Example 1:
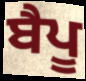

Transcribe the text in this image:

ਬੈਪੂ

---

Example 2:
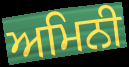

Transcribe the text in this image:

ਅਮਿਨੀ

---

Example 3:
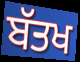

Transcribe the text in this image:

ਬੱਤਖ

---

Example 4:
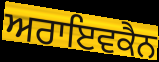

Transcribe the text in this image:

ਅਰਾਇਵਕੈਨ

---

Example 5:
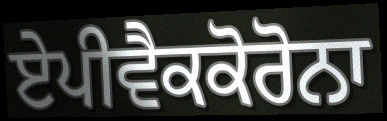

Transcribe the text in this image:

ਏਪੀਵੈਕਕੋਰੋਨਾ